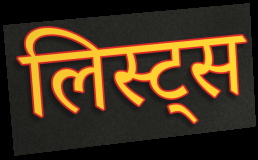
लिस्ट्स